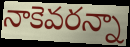
నాకెవరన్నా